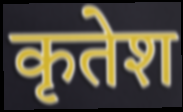
कृतेश